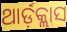
ଥାର୍ଡ଼କ୍ଲାସ